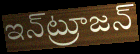
ఇన్‌ట్రూజన్